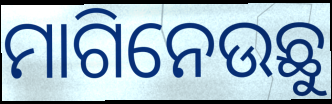
ମାଗିନେଉଛୁ